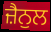
ਜ਼ੈਨੁਲ